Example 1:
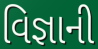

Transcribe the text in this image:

વિજ્ઞાની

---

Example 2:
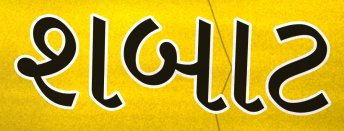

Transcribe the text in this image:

શબાટ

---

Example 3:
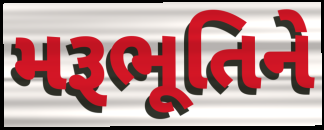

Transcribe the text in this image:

મરૂભૂતિને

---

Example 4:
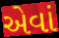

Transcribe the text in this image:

એવાં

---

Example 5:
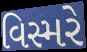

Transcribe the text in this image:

વિસ્મરે